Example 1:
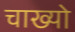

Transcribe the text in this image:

चाख्यो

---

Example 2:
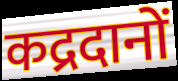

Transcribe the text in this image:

कद्रदानों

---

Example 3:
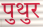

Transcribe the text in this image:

पुथुर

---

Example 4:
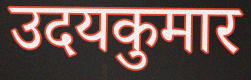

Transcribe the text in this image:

उदयकुमार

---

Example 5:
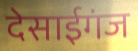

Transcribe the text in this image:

देसाईगंज